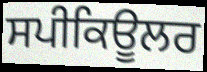
ਸਪੀਕਿਊਲਰ